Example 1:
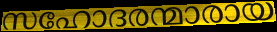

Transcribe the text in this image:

സഹോദരന്മാരായ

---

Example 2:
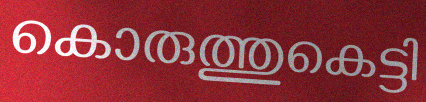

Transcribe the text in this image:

കൊരുത്തുകെട്ടി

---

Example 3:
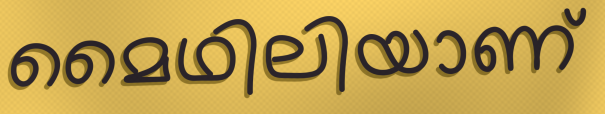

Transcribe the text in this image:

മൈഥിലിയാണ്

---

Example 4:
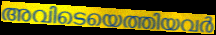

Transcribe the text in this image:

അവിടെയെത്തിയവർ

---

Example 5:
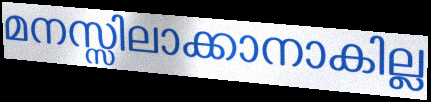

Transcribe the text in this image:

മനസ്സിലാക്കാനാകില്ല